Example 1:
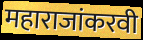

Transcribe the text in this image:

महाराजांकरवी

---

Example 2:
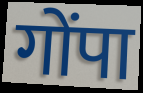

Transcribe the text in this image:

गोंपा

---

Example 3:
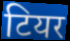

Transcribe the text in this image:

टियर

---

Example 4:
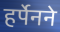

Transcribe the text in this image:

हर्पेनने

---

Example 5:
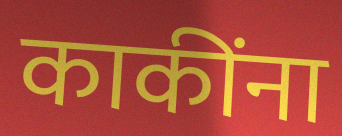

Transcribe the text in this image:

काकींना